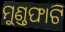
ମୁଣ୍ଡଫାଟି